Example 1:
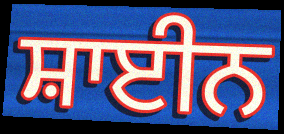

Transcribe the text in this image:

ਸ਼ਾਈਨ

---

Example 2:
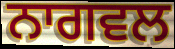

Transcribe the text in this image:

ਨਾਗਵਲ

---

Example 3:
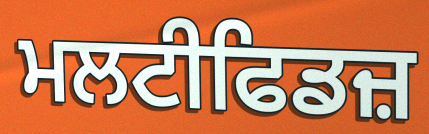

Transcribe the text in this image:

ਮਲਟੀਫਿਡਜ਼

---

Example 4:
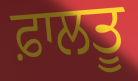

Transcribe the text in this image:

ਫ਼ਾਲਤੂ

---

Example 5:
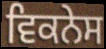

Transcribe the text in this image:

ਵਿਕਨੇਸ